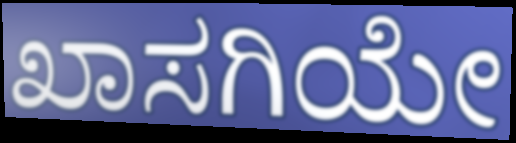
ಖಾಸಗಿಯೇ